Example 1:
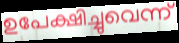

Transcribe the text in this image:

ഉപേക്ഷിച്ചുവെന്ന്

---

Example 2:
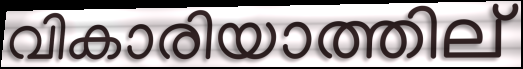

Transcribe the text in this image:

വികാരിയാത്തില്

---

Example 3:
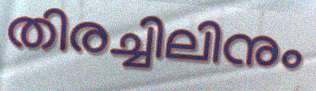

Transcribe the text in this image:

തിരച്ചിലിനും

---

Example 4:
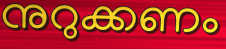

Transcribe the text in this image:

നുറുക്കണം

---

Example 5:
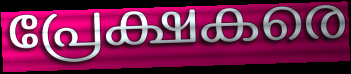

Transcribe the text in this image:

പ്രേക്ഷകരെ